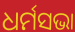
ଧର୍ମସଭା